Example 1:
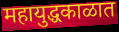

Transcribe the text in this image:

महायुद्धकाळात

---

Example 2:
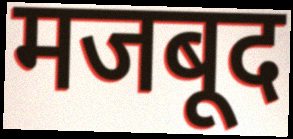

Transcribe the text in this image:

मजबूद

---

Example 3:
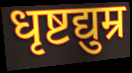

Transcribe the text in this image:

धृष्टद्युम्र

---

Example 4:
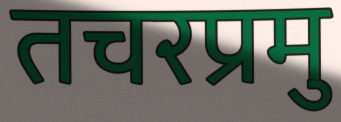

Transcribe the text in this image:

तचरप्रमु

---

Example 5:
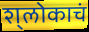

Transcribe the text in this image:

श्लोकाचं